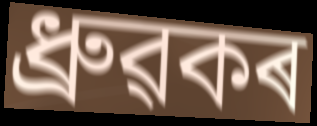
ধ্ৰুৱকৰ